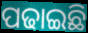
ପଢାଇଛି